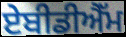
ਏਬੀਡੀਐੱਮ